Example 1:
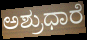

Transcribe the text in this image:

ಅಶ್ರುಧಾರೆ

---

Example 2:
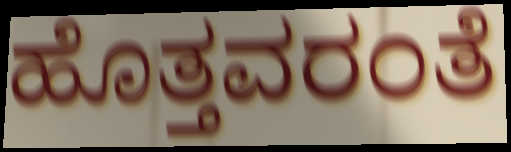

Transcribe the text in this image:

ಹೊತ್ತವರಂತೆ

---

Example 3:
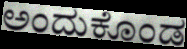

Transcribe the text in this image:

ಅಂದುಕೊಂಡ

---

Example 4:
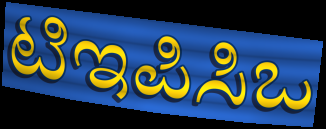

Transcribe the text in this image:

ಟಿಇಪಿಸಿಒ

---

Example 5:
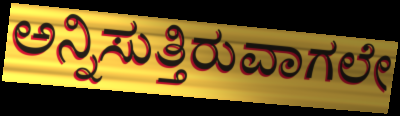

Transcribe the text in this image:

ಅನ್ನಿಸುತ್ತಿರುವಾಗಲೇ